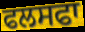
ਫਲਸਫਾ